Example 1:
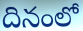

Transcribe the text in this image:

దినంలో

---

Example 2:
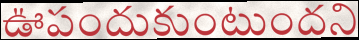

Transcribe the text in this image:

ఊపందుకుంటుందని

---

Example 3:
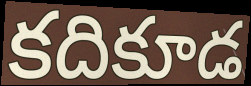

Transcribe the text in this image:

కదికూడ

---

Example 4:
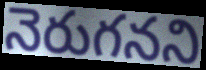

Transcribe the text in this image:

నెరుగనని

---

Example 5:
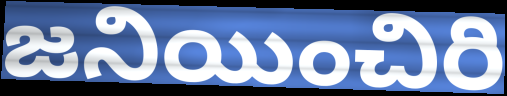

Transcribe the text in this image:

జనియించిరి